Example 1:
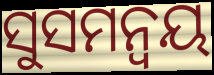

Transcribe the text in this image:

ସୁସମନ୍ୱୟ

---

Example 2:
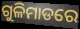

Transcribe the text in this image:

ଗୁଳିମାଡରେ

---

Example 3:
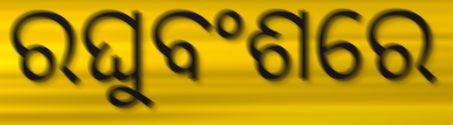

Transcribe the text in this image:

ରଘୁବଂଶରେ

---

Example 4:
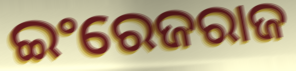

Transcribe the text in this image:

ଇଂରେଜରାଜ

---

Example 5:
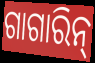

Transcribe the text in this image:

ଗାଗାରିନ୍